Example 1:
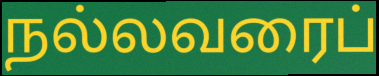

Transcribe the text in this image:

நல்லவரைப்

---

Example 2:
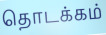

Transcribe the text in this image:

தொடக்கம்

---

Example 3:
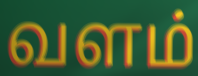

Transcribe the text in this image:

வளம்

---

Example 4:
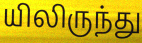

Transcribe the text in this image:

யிலிருந்து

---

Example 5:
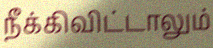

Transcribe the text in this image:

நீக்கிவிட்டாலும்